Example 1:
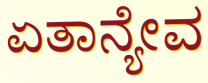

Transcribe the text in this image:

ಏತಾನ್ಯೇವ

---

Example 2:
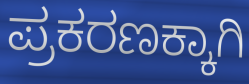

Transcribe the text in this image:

ಪ್ರಕರಣಕ್ಕಾಗಿ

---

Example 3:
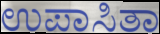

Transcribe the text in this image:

ಉಪಾಸಿತಾ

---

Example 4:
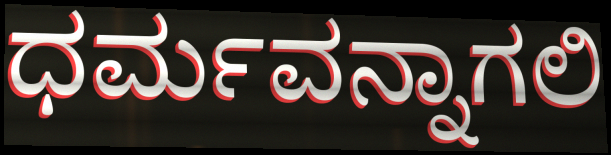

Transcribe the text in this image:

ಧರ್ಮವನ್ನಾಗಲಿ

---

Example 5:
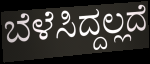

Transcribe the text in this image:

ಬೆಳೆಸಿದ್ದಲ್ಲದೆ